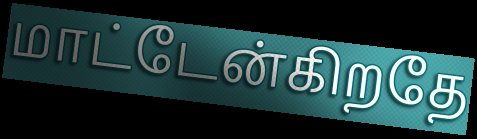
மாட்டேன்கிறதே